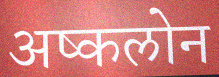
अष्कलोन